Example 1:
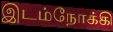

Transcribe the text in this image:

இடம்நோக்கி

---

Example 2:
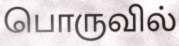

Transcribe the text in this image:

பொருவில்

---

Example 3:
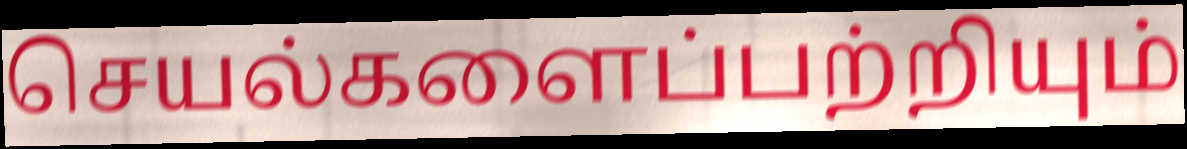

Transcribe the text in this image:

செயல்களைப்பற்றியும்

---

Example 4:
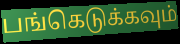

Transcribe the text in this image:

பங்கெடுக்கவும்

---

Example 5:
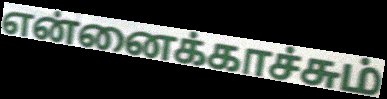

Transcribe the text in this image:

என்னைக்காச்சும்